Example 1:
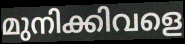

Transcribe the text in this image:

മുനിക്കിവളെ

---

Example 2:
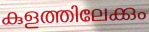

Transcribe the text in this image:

കുളത്തിലേക്കും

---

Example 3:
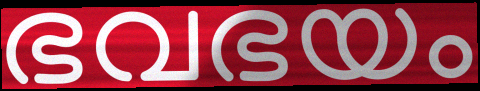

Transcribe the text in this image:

ഭവഭയം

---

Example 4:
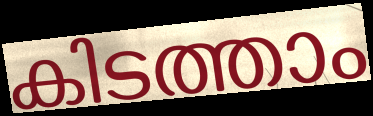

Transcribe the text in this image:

കിടത്താം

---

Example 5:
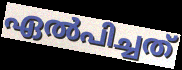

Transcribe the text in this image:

ഏൽപിച്ചത്